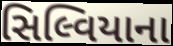
સિલ્વિયાના